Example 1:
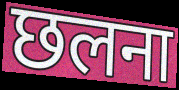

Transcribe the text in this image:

छलना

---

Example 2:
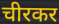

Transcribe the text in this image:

चीरकर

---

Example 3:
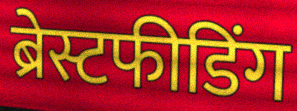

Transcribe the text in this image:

ब्रेस्टफीडिंग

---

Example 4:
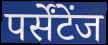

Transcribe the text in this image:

पर्सेंटेंज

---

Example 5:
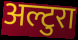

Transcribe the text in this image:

अल्टुरा